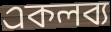
একলব্য